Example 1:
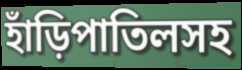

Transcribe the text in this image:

হাঁড়িপাতিলসহ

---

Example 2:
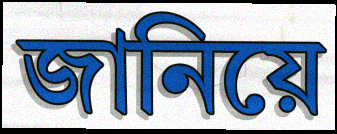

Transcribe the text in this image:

জানিয়ে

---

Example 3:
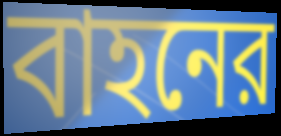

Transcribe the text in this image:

বাহনের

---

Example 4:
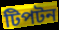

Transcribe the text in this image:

টিপটন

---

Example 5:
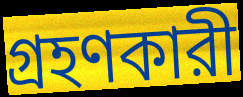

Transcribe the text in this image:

গ্রহণকারী